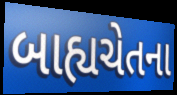
બાહ્યચેતના